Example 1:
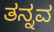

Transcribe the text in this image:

ತನ್ನವ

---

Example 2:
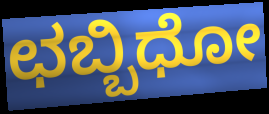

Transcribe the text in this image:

ಛಬ್ಬಿಧೋ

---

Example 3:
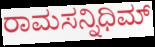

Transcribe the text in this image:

ರಾಮಸನ್ನಿಧಿಮ್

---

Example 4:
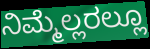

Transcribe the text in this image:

ನಿಮ್ಮೆಲ್ಲರಲ್ಲೂ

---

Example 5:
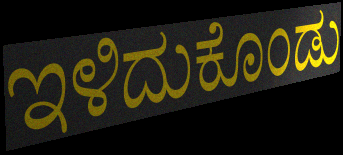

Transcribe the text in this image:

ಇಳಿದುಕೊಂಡು